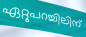
ഏറ്റുപറച്ചിലിന്